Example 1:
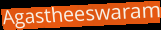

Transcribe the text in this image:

Agastheeswaram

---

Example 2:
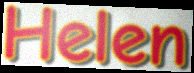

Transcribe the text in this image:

Helen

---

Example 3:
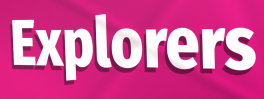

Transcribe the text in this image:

Explorers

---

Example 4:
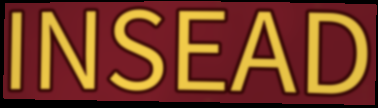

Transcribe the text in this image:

INSEAD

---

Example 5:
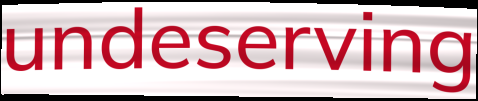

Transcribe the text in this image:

undeserving